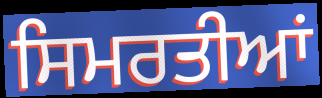
ਸਿਮਰਤੀਆਂ